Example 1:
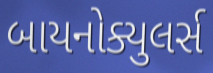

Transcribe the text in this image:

બાયનોક્યુલર્સ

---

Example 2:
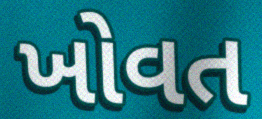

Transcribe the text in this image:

ખોવત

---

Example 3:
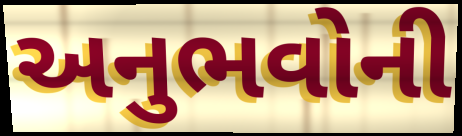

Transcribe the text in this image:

અનુભવોની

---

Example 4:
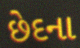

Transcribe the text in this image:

છેદના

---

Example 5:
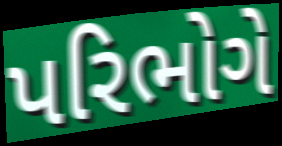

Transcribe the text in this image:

પરિભોગે